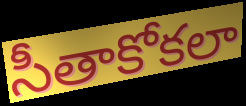
సీతాకోకలా